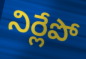
నిర్లేపో